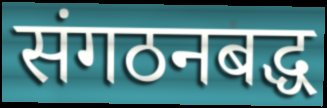
संगठनबद्ध